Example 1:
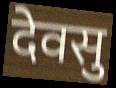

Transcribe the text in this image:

देवसु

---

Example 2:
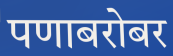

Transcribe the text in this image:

पणाबरोबर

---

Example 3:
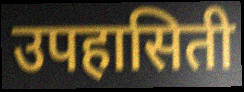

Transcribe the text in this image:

उपहासिती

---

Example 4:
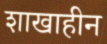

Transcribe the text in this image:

शाखाहीन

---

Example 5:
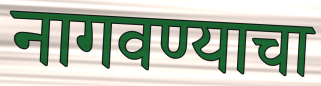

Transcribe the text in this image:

नागवण्याचा